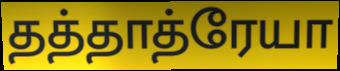
தத்தாத்ரேயா